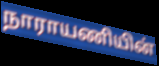
நாராயணியின்